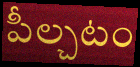
పీల్చటం